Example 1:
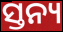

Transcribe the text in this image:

ସ୍ତନ୍ୟ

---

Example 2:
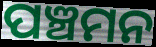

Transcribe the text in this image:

ପଞ୍ଚମନ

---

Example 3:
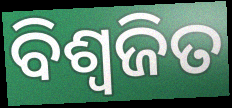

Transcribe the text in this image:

ବିଶ୍ଵଜିତ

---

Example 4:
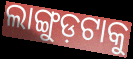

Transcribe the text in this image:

ଲାଙ୍ଗୁଡ଼ଟାକୁ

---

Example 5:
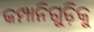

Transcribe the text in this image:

କମ୍ପାନିଗୁଡ଼ିକୁ